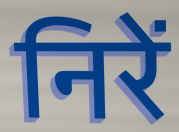
निरें